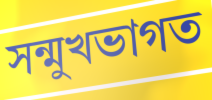
সন্মুখভাগত